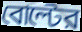
বোল্টের